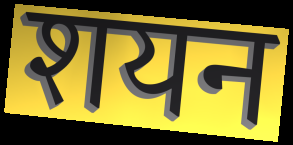
शयन